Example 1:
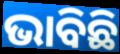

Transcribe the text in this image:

ଭାବିଛି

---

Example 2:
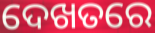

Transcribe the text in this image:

ଦେଖତରେ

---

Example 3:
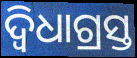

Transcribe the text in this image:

ଦ୍ୱିଧାଗ୍ରସ୍ତ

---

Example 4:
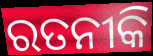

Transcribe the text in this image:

ରତନୀକି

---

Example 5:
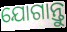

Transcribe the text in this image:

ଯୋଗାନ୍ତୁ